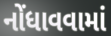
નોંધાવવામાં